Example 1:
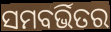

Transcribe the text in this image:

ସମବର୍ଭିତର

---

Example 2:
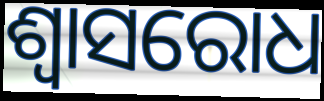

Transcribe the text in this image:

ଶ୍ୱାସରୋଧ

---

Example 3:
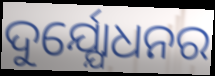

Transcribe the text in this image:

ଦୁର୍ଯ୍ଯୋଧନର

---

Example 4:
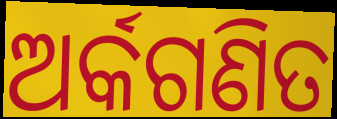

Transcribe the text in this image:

ଅର୍କଗଣିତ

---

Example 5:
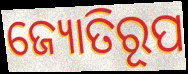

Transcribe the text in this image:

ଜ୍ୟୋତିରୂପ